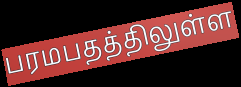
பரமபதத்திலுள்ள